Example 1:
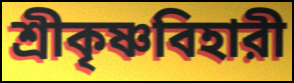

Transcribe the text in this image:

শ্রীকৃষ্ণবিহারী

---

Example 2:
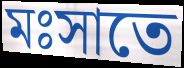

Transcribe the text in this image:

মঃসাতে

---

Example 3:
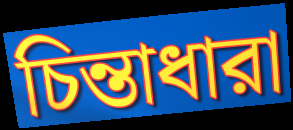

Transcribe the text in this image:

চিন্তাধারা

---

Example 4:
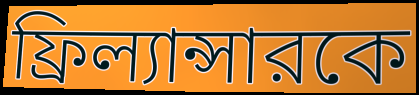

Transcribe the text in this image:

ফ্রিল্যান্সারকে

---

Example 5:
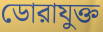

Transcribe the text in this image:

ডোরাযুক্ত